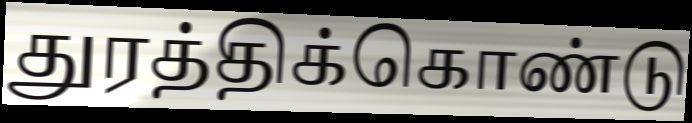
துரத்திக்கொண்டு